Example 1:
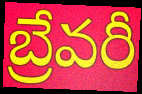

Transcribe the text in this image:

బ్రేవరీ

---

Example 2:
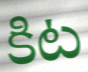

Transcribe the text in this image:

కిట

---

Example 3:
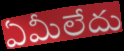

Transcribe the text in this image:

ఏమీలేదు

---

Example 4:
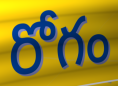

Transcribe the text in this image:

రోగం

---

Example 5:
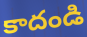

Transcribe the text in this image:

కాదండి